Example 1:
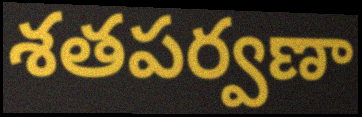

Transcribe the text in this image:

శతపర్వణా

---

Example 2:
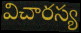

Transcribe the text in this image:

విచారస్య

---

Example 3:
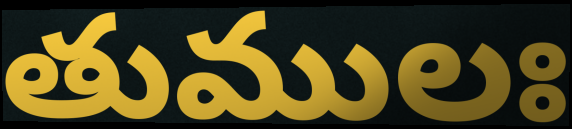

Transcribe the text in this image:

తుములః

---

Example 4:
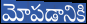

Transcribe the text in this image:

మోపడానికి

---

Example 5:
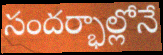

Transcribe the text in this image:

సందర్భాల్లోనే